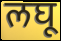
लघू